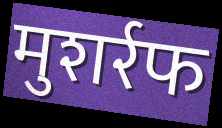
मुशर्रफ